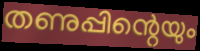
തണുപ്പിന്റെയും